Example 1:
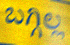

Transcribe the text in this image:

ಬಗ್ಗಿಲ್ಲ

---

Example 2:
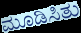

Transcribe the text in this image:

ಮೂಡಿಸಿತು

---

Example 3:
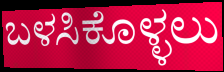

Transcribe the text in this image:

ಬಳಸಿಕೊಳ್ಳಲು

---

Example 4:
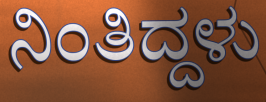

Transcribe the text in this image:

ನಿಂತಿದ್ದಳು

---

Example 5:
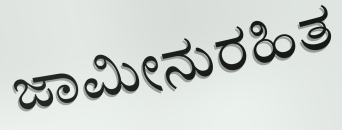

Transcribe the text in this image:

ಜಾಮೀನುರಹಿತ